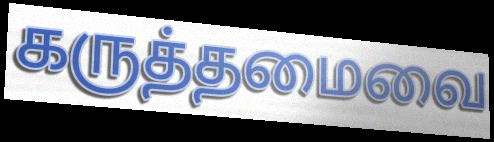
கருத்தமைவை